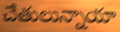
చేతులున్నాయా